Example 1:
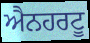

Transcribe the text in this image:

ਐਨਹਰਟੂ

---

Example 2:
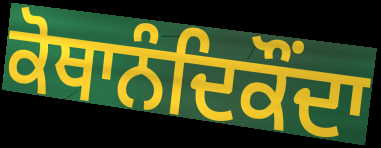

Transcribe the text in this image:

ਕੋਥਾਨੰਦਿਕੌਂਦਾ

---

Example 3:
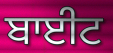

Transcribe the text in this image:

ਬਾਈਟ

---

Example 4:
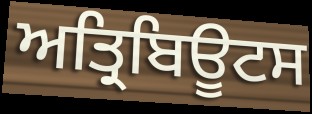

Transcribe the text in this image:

ਅਤ੍ਰਿਬਿਊਟਸ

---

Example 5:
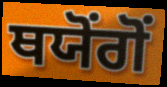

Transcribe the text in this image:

ਥਯੋਂਗੋਂ